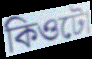
কিওটো